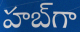
హబ్‌గా